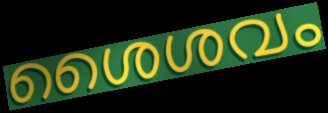
ശൈശവം